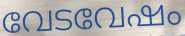
വേടവേഷം